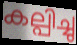
കല്പിച്ചു